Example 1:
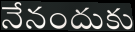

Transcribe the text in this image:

నేనందుకు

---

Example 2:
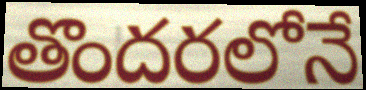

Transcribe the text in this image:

తొందరలోనే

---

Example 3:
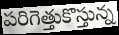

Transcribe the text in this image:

పరిగెత్తుకొస్తున్న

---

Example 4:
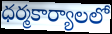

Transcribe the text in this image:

ధర్మకార్యాలలో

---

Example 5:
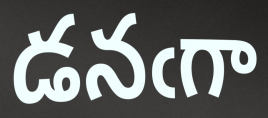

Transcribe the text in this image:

డనఁగా